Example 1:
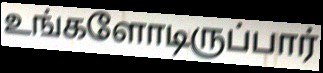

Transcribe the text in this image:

உங்களோடிருப்பார்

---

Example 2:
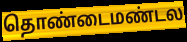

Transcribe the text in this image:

தொண்டைமண்டல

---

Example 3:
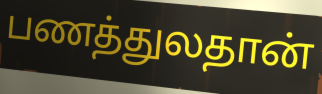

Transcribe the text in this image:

பணத்துலதான்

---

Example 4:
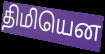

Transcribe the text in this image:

திமியென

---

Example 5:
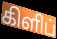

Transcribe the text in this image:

கிளிப்